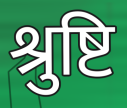
श्रुष्टि